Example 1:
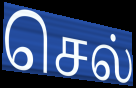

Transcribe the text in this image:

செல்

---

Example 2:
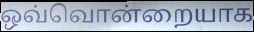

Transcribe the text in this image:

ஒவ்வொன்றையாக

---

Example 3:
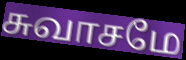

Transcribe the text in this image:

சுவாசமே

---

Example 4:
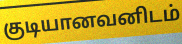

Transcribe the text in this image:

குடியானவனிடம்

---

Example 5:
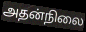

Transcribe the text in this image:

அதன்நிலை